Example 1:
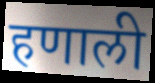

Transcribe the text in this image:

हणाली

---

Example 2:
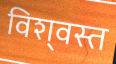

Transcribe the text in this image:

विश्वस्त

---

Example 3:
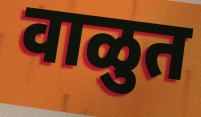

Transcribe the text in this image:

वाळुत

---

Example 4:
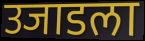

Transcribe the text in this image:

उजाडला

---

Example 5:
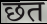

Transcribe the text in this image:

छत